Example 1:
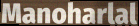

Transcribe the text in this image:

Manoharlal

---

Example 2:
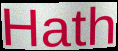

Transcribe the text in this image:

Hath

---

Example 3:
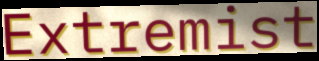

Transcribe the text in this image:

Extremist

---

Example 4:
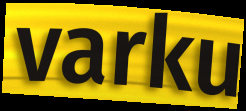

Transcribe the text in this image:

varku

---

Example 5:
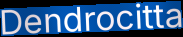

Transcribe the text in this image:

Dendrocitta